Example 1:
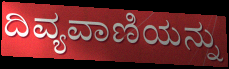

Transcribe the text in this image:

ದಿವ್ಯವಾಣಿಯನ್ನು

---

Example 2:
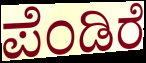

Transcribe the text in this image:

ಪೆಂಡಿರೆ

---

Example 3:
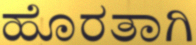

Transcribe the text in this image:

ಹೊರತಾಗಿ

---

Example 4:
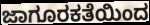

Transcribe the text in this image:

ಜಾಗೂರಕತೆಯಿಂದ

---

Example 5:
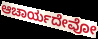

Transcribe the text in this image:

ಆಚಾರ್ಯದೇವೋ